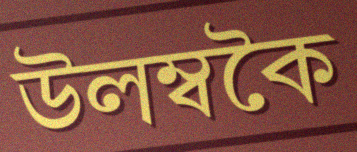
উলম্বকৈ